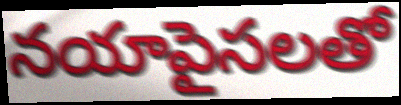
నయాపైసలతో